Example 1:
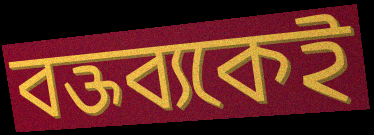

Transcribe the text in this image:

বক্তব্যকেই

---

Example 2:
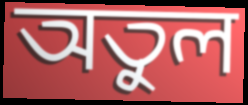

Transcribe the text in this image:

অতুল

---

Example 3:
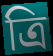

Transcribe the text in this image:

ত্রি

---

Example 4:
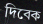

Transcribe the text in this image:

দিবেক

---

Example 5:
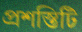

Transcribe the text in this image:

প্রশস্তিটি